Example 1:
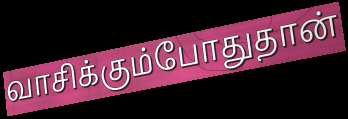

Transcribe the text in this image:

வாசிக்கும்போதுதான்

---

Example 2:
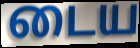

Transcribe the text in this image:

டைய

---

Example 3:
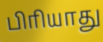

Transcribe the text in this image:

பிரியாது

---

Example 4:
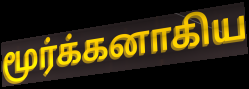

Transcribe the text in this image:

மூர்க்கனாகிய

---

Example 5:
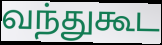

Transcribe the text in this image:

வந்துகூட